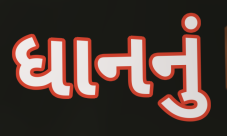
ધાનનું